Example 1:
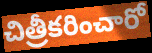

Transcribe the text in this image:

చిత్రీకరించారో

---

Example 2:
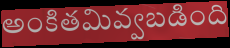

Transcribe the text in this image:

అంకితమివ్వబడింది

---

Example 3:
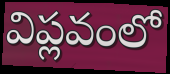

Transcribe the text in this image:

విప్లవంలో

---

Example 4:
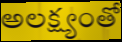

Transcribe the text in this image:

అలక్ష్యంతో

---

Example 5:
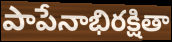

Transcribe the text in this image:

పాపేనాభిరక్షితా